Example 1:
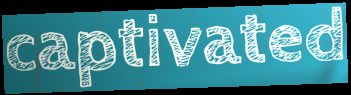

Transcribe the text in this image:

captivated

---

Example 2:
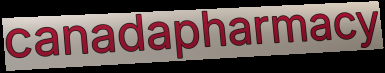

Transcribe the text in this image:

canadapharmacy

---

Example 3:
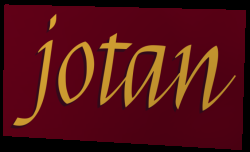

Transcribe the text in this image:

jotan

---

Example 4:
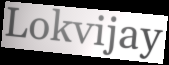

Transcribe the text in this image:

Lokvijay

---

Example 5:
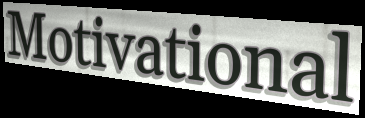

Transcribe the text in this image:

Motivational